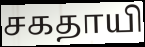
சகதாயி